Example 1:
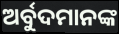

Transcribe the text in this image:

ଅର୍ବୁଦମାନଙ୍କ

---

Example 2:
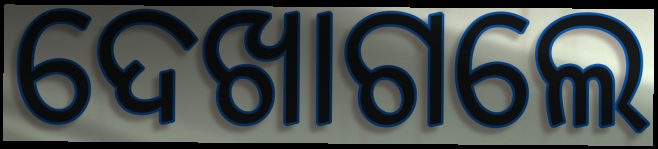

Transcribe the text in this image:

ଦେଖାଗଲେ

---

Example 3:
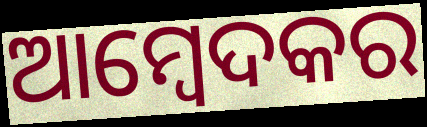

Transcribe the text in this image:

ଆମ୍ବେଦକର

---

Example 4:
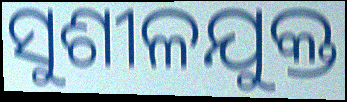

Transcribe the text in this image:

ସୁଶୀଳଯୁକ୍ତ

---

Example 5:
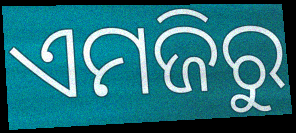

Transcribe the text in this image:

ଏମଜିରୁ